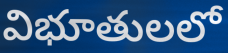
విభూతులలో